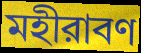
মহীরাবণ